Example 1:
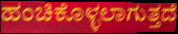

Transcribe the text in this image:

ಹಂಚಿಕೊಳ್ಳಲಾಗುತ್ತದೆ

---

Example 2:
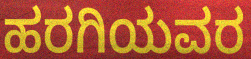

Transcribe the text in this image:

ಹರಗಿಯವರ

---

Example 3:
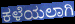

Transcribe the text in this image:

ಕಳೆಯಲಾಗಿ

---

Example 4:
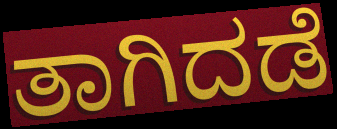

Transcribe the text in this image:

ತಾಗಿದಡೆ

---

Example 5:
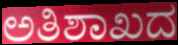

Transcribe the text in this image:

ಅತಿಶಾಖದ